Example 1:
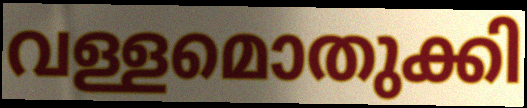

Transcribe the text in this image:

വള്ളമൊതുക്കി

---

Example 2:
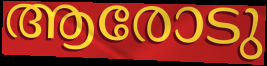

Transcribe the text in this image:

ആരോടു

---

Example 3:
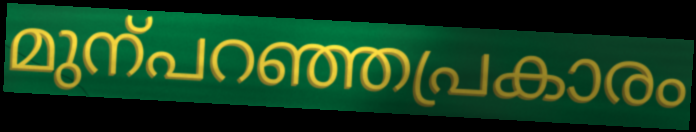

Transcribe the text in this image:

മുന്പറഞ്ഞപ്രകാരം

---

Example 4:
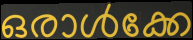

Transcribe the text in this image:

ഒരാൾക്കേ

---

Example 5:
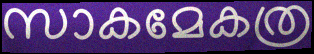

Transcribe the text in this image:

സാകമേകത്ര